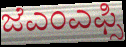
ಜೆಎಂಎಫ್ಸಿ